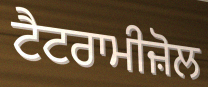
ਟੈਟਰਾਮੀਜ਼ੋਲ